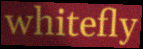
whitefly